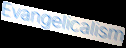
Evangelicalism